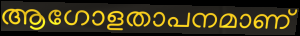
ആഗോളതാപനമാണ്